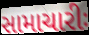
સામાચારીઃ